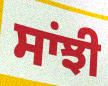
ਸਾਂਝੀ